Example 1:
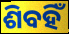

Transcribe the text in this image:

ଶିବହିଁ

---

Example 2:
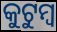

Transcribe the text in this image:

କୁଟୁମ୍ଵ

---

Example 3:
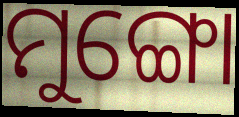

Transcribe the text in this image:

ମୁଙ୍ଗୋ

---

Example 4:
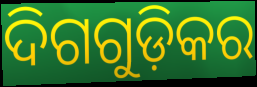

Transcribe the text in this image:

ଦିଗଗୁଡ଼ିକର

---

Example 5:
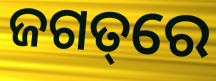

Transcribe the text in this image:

ଜଗତ୍‌ରେ